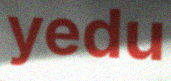
yedu